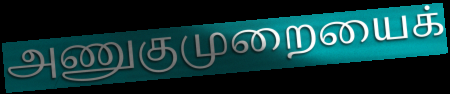
அணுகுமுறையைக்